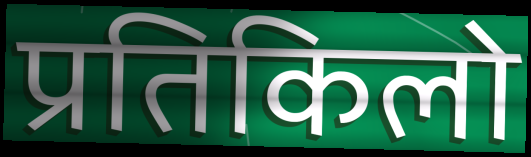
प्रतिकिलो